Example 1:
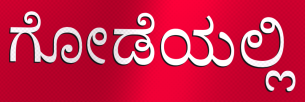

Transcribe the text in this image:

ಗೋಡೆಯಲ್ಲಿ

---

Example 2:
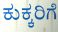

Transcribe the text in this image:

ಕುಕ್ಕರಿಗೆ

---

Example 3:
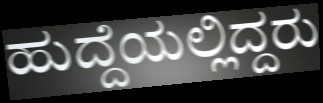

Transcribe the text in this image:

ಹುದ್ದೆಯಲ್ಲಿದ್ದರು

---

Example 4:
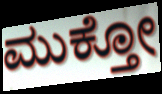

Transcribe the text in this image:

ಮುಕ್ತೋ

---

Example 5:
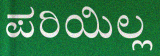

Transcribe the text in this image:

ಪರಿಯಿಲ್ಲ